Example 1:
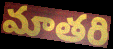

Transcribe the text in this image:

మాతరి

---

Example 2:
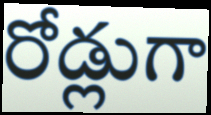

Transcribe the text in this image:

రోడ్లుగా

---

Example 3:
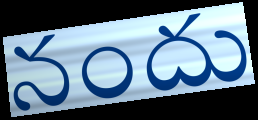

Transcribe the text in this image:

నందు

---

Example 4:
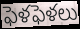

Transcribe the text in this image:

ఫెళఫెళలు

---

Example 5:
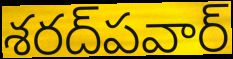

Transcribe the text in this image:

శరద్‌పవార్